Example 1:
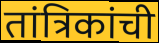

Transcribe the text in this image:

तांत्रिकांची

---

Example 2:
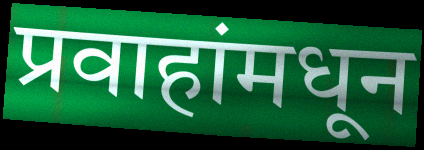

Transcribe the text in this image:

प्रवाहांमधून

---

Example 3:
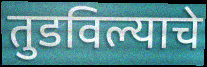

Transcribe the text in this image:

तुडविल्याचे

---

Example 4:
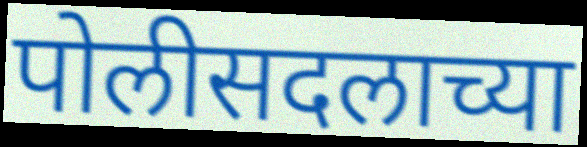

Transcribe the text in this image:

पोलीसदलाच्या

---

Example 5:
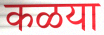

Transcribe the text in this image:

कळया